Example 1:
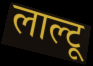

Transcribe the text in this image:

लाल्टू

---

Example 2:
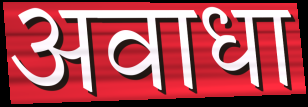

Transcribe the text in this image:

अवाधा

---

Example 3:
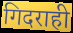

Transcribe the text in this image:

गिदराही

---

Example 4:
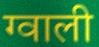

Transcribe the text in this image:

ग्वाली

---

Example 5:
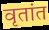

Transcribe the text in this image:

वृतांत